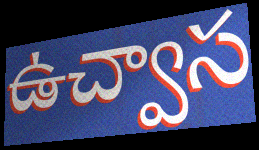
ఉచ్వాస